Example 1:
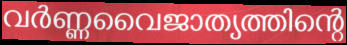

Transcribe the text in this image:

വർണ്ണവൈജാത്യത്തിന്റെ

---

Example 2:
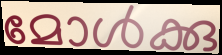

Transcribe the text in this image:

മോൾക്കു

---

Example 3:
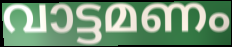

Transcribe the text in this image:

വാട്ടമണം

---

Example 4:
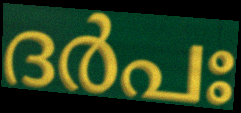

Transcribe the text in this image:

ദർപഃ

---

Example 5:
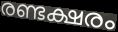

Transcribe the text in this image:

രണ്ടക്ഷരം